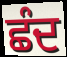
ਛੰਦ